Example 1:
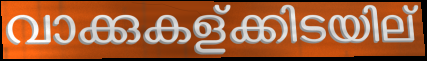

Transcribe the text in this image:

വാക്കുകള്ക്കിടയില്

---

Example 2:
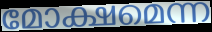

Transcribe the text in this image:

മോക്ഷമെന്ന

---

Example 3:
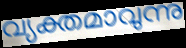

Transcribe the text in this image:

വ്യക്തമാവുന്നു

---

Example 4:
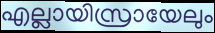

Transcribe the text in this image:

എല്ലായിസ്രായേലും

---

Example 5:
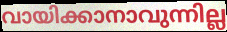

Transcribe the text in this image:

വായിക്കാനാവുന്നില്ല